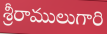
శ్రీరాములుగారి